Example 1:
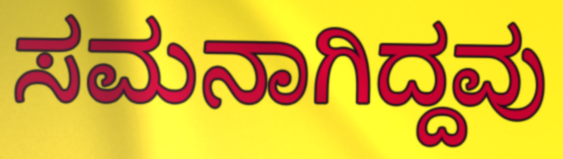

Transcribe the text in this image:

ಸಮನಾಗಿದ್ದವು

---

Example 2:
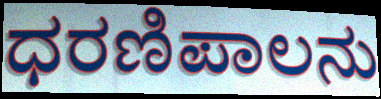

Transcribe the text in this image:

ಧರಣಿಪಾಲನು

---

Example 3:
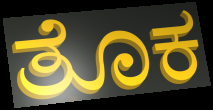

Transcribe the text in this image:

ತೊಕ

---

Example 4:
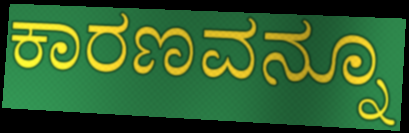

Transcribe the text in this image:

ಕಾರಣವನ್ನೂ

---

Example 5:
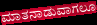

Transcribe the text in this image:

ಮಾತನಾಡುವಾಗಲೂ